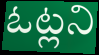
ఓట్లని